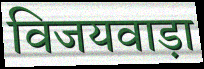
विजयवाड़ा